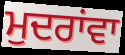
ਮੁਦਰਾਂਵਾ